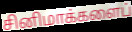
சினிமாக்களைப்